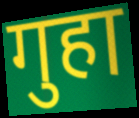
गुहा